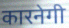
कारनेगी